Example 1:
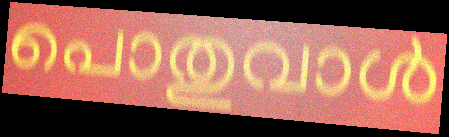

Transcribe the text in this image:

പൊതുവാൾ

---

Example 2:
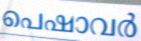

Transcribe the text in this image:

പെഷാവർ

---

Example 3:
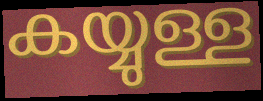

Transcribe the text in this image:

കയ്യുള്ള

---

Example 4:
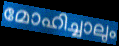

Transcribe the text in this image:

മോഹിച്ചാലും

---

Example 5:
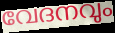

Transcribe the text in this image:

വേദനവും